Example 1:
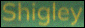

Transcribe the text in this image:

Shigley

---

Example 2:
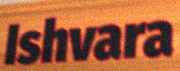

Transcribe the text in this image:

Ishvara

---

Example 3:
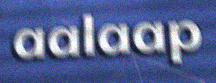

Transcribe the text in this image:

aalaap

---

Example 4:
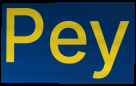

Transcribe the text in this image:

Pey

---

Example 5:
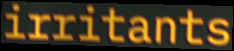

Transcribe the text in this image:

irritants